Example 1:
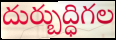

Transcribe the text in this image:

దుర్బుద్ధిగల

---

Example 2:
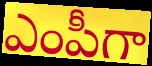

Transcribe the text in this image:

ఎంపీగా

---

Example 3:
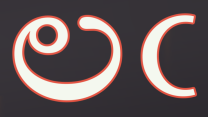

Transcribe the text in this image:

లఁ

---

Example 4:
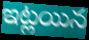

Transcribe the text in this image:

ఇట్లయిన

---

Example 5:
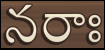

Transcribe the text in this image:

నరాః